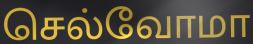
செல்வோமா